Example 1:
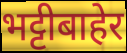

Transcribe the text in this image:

भट्टीबाहेर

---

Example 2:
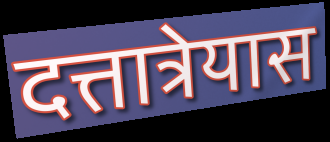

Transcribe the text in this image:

दत्तात्रेयास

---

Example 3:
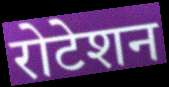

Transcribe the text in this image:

रोटेशन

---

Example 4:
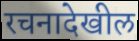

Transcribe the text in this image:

रचनादेखील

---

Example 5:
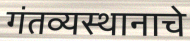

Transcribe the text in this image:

गंतव्यस्थानाचे